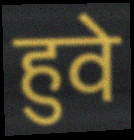
हुवे